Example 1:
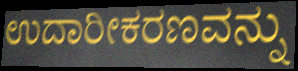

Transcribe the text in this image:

ಉದಾರೀಕರಣವನ್ನು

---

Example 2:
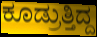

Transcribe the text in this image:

ಕೂಡ್ರುತ್ತಿದ್ದ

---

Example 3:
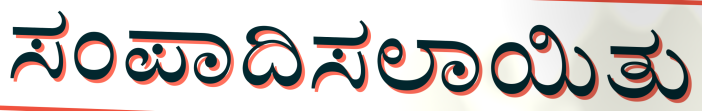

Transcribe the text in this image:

ಸಂಪಾದಿಸಲಾಯಿತು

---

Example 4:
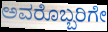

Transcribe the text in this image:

ಅವರೊಬ್ಬರಿಗೇ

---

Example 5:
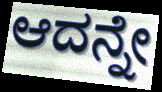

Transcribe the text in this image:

ಆದನ್ನೇ